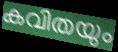
കവിതയും